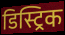
डिस्ट्रिक